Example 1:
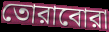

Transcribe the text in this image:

তোরাবোরা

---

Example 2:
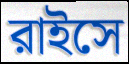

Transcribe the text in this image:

রাইসে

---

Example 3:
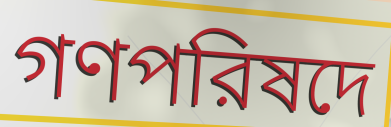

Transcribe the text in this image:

গণপরিষদে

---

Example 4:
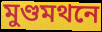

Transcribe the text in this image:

মুণ্ডমথনে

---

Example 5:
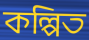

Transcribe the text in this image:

কল্পিত